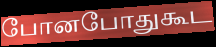
போனபோதுகூட